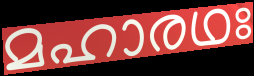
മഹാരഥഃ